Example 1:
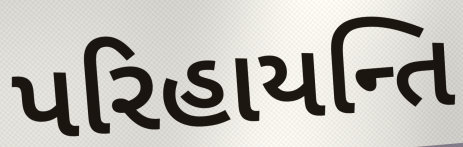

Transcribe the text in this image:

પરિહાયન્તિ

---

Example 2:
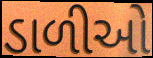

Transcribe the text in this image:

ડાળીઓ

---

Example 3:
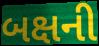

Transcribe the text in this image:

બક્ષની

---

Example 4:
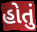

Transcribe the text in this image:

હોતું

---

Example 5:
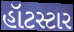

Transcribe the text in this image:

હૉટસ્ટાર